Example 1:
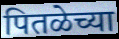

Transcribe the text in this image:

पितळेच्या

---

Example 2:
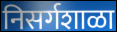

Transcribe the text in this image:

निसर्गशाळा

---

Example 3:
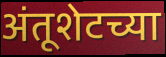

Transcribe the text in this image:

अंतूशेटच्या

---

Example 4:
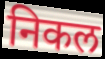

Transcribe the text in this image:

निकल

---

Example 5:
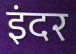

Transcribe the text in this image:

इंदर